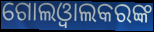
ଗୋଲଓ୍ଵାଲକରଙ୍କ